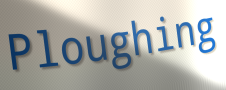
Ploughing